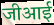
जीआई